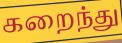
கறைந்து